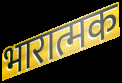
भारात्मक